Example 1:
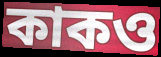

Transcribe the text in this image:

কাকও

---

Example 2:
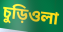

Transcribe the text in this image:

চুড়িওলা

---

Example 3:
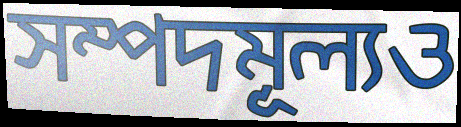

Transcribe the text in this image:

সম্পদমূল্যও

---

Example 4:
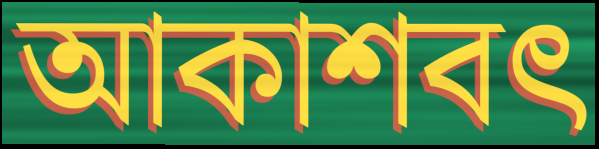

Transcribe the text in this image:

আকাশবৎ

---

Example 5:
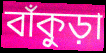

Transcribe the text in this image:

বাঁকুড়া